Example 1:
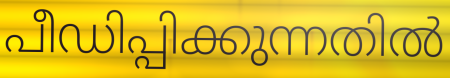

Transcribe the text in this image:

പീഡിപ്പിക്കുന്നതിൽ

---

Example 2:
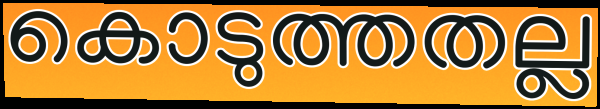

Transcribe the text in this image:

കൊടുത്തതല്ല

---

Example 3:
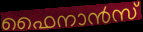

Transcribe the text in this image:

ഫൈനാൻസ്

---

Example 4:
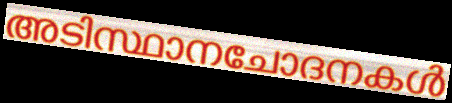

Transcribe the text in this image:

അടിസ്ഥാനചോദനകൾ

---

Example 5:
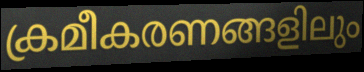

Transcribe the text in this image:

ക്രമീകരണങ്ങളിലും